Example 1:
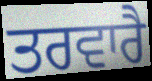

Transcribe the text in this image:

ਤਰਵਾਰੈ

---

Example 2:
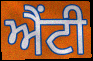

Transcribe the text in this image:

ਐਂਟੀ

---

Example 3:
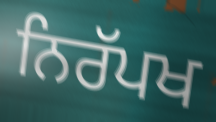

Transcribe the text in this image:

ਨਿਰੱਪਖ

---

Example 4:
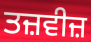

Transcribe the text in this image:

ਤਜ਼ਵੀਜ਼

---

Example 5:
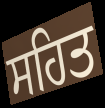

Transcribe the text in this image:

ਸਹਿਤ